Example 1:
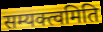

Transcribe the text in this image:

सम्यक्त्वमिति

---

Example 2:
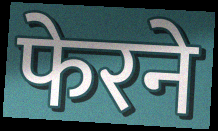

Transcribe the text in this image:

फेरने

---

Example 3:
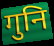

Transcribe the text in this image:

गुनि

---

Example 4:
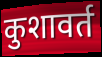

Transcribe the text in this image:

कुशावर्त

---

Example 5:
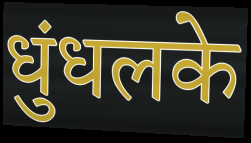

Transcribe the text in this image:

धुंधलके